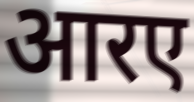
आरए